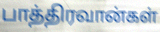
பாத்திரவான்கள்